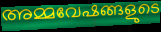
അമ്മവേഷങ്ങളുടെ